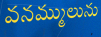
వనమ్ములును